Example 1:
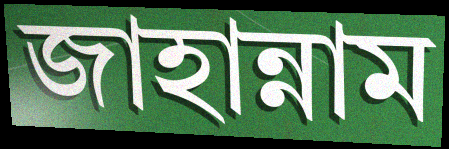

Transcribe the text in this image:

জাহান্নাম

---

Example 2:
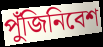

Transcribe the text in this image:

পুঁজিনিবেশ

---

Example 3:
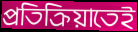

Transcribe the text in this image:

প্রতিক্রিয়াতেই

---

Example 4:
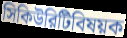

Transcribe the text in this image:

সিকিউরিটিবিষয়ক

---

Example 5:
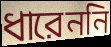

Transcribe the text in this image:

ধারেননি